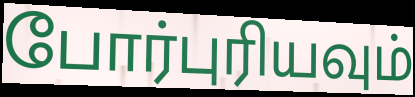
போர்புரியவும்